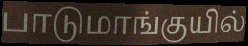
பாடுமாங்குயில்